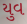
યુવ